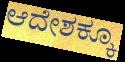
ಆದೇಶಕ್ಕೂ